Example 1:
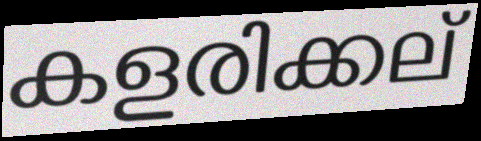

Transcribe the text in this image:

കളരിക്കല്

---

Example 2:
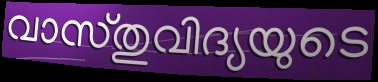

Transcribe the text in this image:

വാസ്തുവിദ്യയുടെ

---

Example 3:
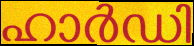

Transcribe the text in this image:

ഹാർഡി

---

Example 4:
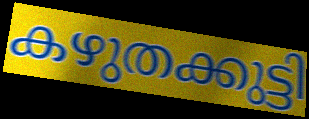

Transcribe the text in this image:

കഴുതക്കുട്ടി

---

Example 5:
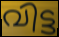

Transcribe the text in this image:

വിട്ട